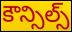
కౌన్సిల్స్